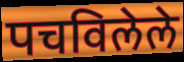
पचविलेले